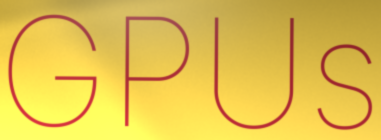
GPUs